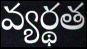
వ్యర్థత